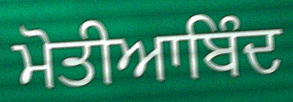
ਮੋਤੀਆਬਿੰਦ